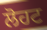
ਲੋਹਟ